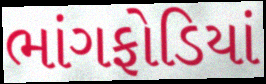
ભાંગફોડિયાં